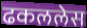
ढकललेस